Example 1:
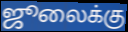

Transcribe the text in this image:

ஜூலைக்கு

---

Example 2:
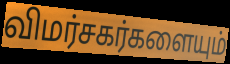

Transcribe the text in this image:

விமர்சகர்களையும்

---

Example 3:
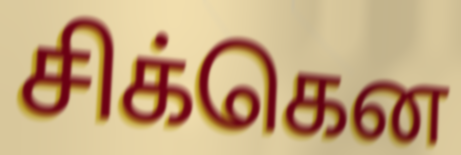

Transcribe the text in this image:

சிக்கென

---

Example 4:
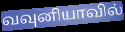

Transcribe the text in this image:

வவுனியாவில்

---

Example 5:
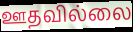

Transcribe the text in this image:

ஊதவில்லை